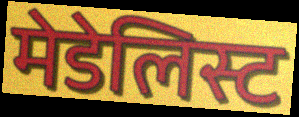
मेडेलिस्ट